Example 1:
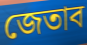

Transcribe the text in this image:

জেতাব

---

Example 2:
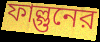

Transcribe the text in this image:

ফাল্গুনের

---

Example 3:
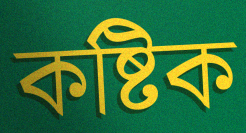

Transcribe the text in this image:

কষ্টিক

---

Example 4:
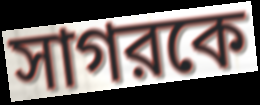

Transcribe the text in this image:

সাগরকে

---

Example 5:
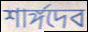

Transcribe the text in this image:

শার্ঙ্গদেব